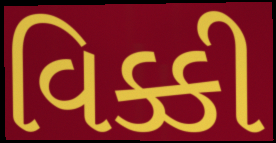
વિક્કી